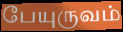
பேயுருவம்